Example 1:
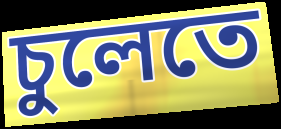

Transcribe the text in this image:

চুলেতে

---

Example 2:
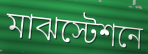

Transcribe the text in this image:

মাঝস্টেশনে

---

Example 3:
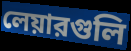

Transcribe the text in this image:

লেয়ারগুলি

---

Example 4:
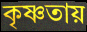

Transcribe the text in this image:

কৃষ্ণতায়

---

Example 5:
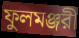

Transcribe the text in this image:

ফুলমঞ্জরী